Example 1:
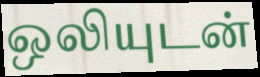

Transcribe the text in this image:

ஒலியுடன்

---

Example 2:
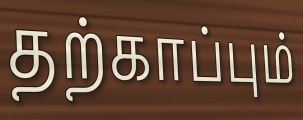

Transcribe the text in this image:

தற்காப்பும்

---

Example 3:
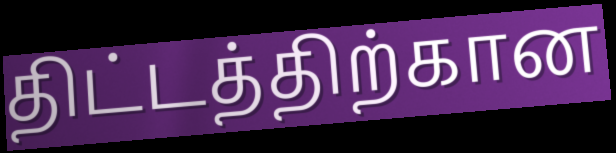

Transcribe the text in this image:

திட்டத்திற்கான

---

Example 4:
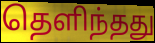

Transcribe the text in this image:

தெளிந்தது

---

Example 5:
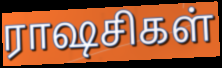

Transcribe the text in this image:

ராஷசிகள்